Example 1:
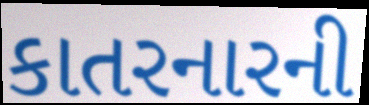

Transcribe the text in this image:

કાતરનારની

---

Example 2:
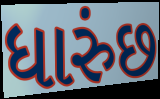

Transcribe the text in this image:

ધારુંછ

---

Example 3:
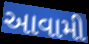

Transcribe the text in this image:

આવામી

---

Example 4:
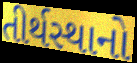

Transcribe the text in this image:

તીર્થસ્થાનો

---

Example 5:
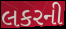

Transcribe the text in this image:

લકરની